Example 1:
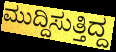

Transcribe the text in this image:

ಮುದ್ದಿಸುತ್ತಿದ್ದ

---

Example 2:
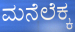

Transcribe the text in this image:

ಮನೆಲೆಕ್ಕ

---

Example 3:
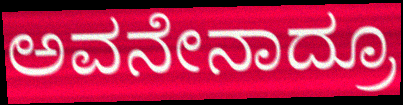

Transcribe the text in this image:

ಅವನೇನಾದ್ರೂ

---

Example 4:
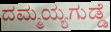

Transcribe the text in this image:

ದಮ್ಮಯ್ಯಗುಡ್ಡೆ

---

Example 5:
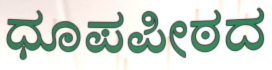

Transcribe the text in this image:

ಧೂಪಪೀಠದ